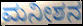
ಮನೀಶನ